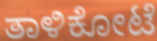
ತಾಳಿಕೋಟೆ